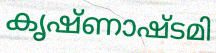
കൃഷ്ണാഷ്ടമി